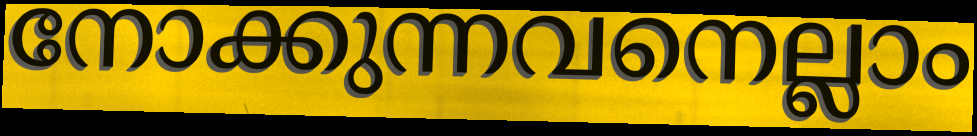
നോക്കുന്നവനെല്ലാം